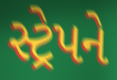
સ્ટ્રેપને